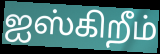
ஐஸ்கிறீம்